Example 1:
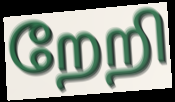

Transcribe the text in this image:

றேறி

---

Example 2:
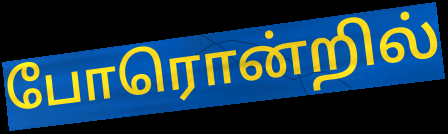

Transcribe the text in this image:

போரொன்றில்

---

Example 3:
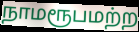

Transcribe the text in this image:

நாமரூபமற்ற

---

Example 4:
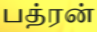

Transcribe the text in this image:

பத்ரன்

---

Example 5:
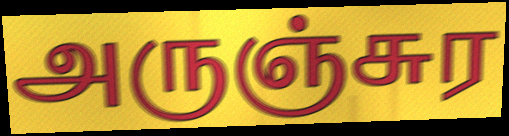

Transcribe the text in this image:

அருஞ்சுர